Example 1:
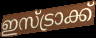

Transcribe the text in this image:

ഇസ്ട്രാക്ക്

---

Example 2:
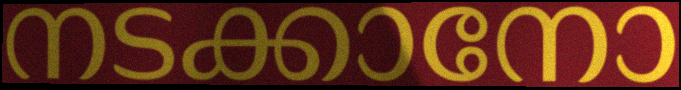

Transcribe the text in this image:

നടക്കാനോ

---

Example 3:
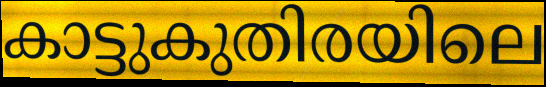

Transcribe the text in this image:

കാട്ടുകുതിരയിലെ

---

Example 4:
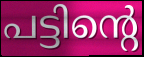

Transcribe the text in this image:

പട്ടിന്റെ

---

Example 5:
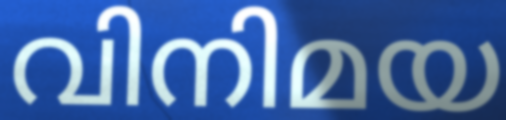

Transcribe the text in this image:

വിനിമയ